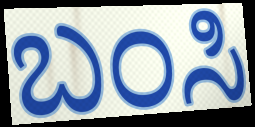
ಬಂಸಿ